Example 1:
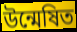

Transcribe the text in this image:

উন্মেষিত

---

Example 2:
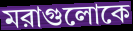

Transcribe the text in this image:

মরাগুলোকে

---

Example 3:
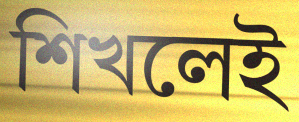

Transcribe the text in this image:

শিখলেই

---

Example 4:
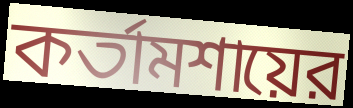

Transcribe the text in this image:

কর্তামশায়ের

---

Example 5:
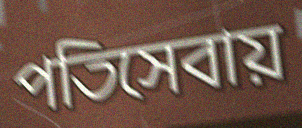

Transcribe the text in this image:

পতিসেবায়